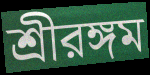
শ্রীরঙ্গম